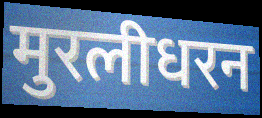
मुरलीधरन